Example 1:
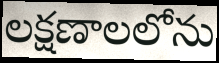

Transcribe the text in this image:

లక్షణాలలోను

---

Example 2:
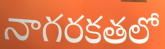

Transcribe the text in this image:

నాగరకతలో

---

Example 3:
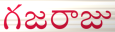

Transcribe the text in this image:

గజరాజు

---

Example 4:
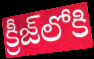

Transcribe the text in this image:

క్రీజ్‌లోకి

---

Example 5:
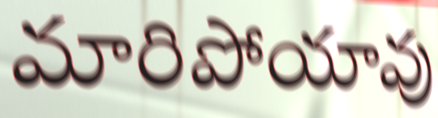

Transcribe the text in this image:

మారిపోయావు